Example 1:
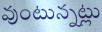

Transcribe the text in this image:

వుంటున్నట్లు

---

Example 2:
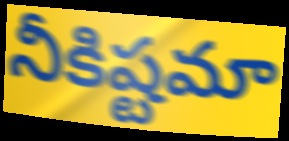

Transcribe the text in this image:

నీకిష్టమా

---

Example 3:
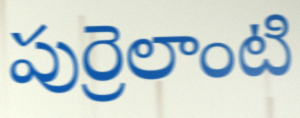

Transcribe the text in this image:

పుర్రెలాంటి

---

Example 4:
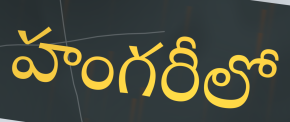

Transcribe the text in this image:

హంగరీలో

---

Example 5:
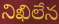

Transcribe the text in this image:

నిఖిలేన